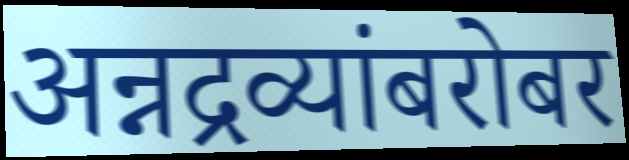
अन्नद्रव्यांबरोबर